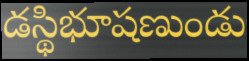
డస్థిభూషణుండు